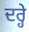
ਦਰ੍ਹੇ